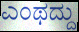
ಎಂಥದ್ದು